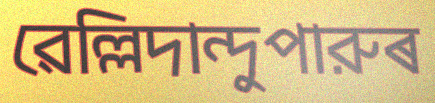
ৱেল্লিদান্দুপাৰুৰ